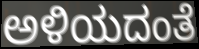
ಅಳಿಯದಂತೆ